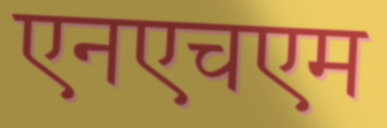
एनएचएम